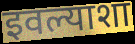
इवल्याशा